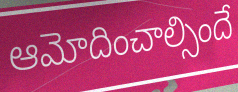
ఆమోదించాల్సిందే